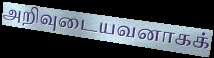
அறிவுடையவனாகக்